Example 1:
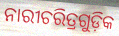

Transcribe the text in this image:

ନାରୀଚରିତ୍ରଗୁଡ଼ିକ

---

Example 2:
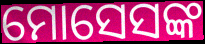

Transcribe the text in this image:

ମୋସେସଙ୍କ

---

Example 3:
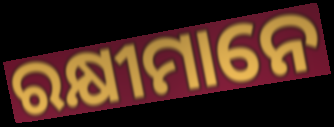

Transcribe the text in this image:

ରକ୍ଷୀମାନେ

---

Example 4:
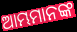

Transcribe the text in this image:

ଆମ୍ଭମାନଙ୍କ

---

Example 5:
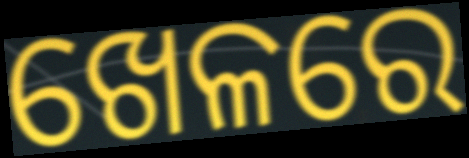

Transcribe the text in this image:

ଖେଳରେ